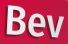
Bev